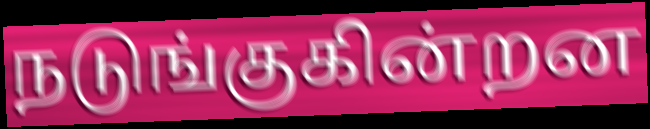
நடுங்குகின்றன